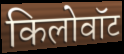
किलोवॉट